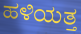
ಹಳಿಯತ್ತ